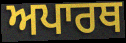
ਅਪਾਰਥ